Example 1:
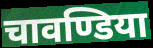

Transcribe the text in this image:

चावण्डिया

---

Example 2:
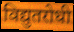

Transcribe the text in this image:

विद्युतरोधी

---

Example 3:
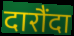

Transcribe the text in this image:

दारौंदा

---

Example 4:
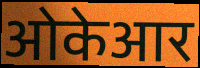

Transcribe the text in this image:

ओकेआर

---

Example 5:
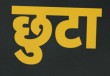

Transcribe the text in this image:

छुटा